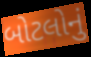
બોટલોનું